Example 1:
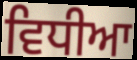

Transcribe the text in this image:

ਵਿਧੀਆ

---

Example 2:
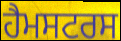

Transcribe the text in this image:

ਹੈਮਸਟਰਸ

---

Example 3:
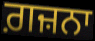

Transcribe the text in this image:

ਗ਼ਜ਼ਨਾ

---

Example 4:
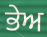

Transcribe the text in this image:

ਭੇਅ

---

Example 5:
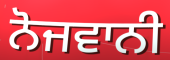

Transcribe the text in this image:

ਨੋਜਵਾਨੀ